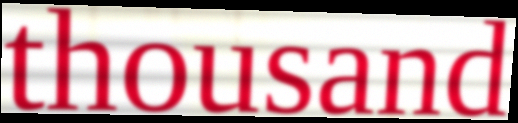
thousand